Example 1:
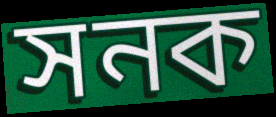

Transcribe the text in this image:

সনক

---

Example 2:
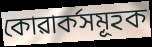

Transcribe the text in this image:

কোৱাৰ্কসমূহক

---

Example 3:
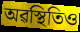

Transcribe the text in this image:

অৱস্থিতিও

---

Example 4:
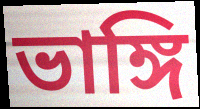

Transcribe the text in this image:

ভাঙ্গি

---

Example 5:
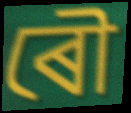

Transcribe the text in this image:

ৰৌ